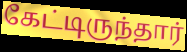
கேட்டிருந்தார்